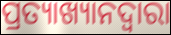
ପ୍ରତ୍ୟାଖ୍ୟାନଦ୍ଵାରା